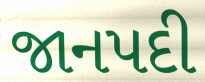
જાનપદી